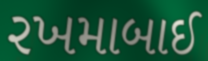
રખમાબાઈ